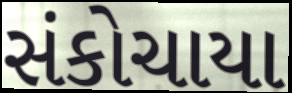
સંકોચાયા